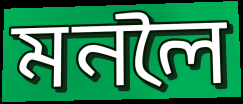
মনলৈ